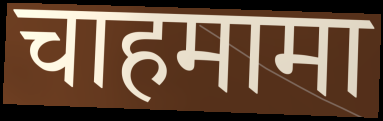
चाहमामा